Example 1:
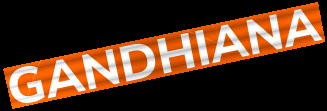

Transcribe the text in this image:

GANDHIANA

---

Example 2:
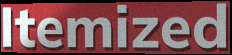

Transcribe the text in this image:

Itemized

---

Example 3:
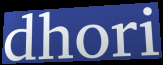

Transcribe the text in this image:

dhori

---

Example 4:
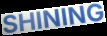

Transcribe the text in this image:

SHINING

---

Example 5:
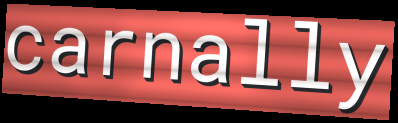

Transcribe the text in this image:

carnally